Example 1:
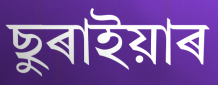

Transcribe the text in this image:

ছুৰাইয়াৰ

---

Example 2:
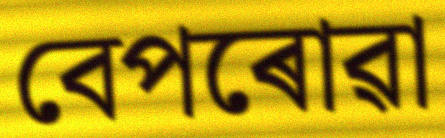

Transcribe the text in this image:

বেপৰোৱা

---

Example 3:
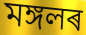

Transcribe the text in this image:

মঙ্গলৰ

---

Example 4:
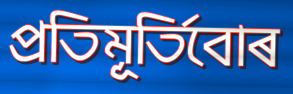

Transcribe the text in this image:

প্ৰতিমূৰ্তিবোৰ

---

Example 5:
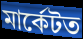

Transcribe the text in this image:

মাৰ্কেটত